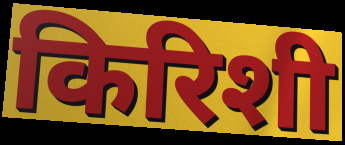
किरिशी